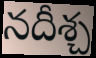
నదీశ్చ